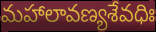
మహాలావణ్యశేవధిః